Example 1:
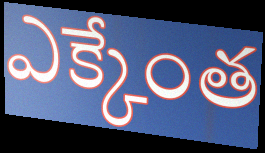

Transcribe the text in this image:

ఎక్కేంత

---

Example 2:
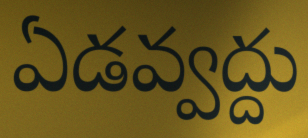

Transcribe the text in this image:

ఏడవ్వద్దు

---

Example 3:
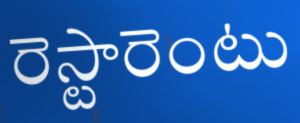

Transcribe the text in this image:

రెస్టారెంటు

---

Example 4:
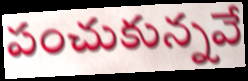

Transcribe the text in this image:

పంచుకున్నవే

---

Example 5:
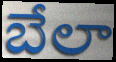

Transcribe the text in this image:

బేలా